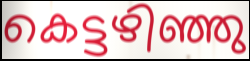
കെട്ടഴിഞ്ഞു